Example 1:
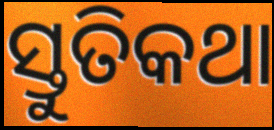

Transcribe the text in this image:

ସ୍ତୁତିକଥା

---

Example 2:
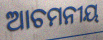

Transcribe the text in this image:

ଆଚମନୀୟ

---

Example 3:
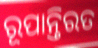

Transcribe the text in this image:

ରୂପାନ୍ତିରତ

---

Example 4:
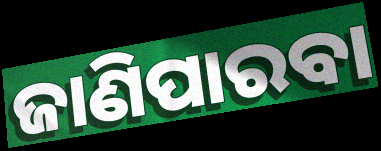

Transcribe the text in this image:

ଜାଣିପାରବା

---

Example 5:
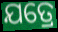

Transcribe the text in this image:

ଯତ୍ରେ